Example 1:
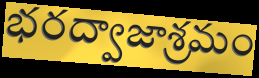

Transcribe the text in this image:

భరద్వాజాశ్రమం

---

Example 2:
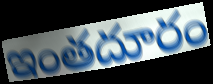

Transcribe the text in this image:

ఇంతదూరం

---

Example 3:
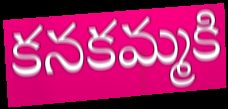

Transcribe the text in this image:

కనకమ్మకి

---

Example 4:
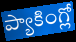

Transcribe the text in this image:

ప్యాకింగ్లో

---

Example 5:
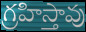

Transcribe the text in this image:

గ్రహిస్తావు